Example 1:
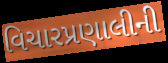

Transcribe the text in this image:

વિચારપ્રણાલીની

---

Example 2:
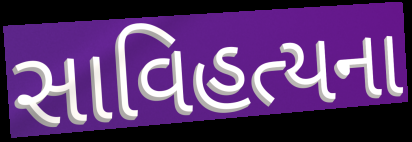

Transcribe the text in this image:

સાવિહત્યના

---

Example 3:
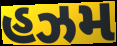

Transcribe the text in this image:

હઝમ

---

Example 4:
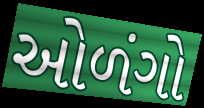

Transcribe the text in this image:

ઓળંગો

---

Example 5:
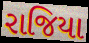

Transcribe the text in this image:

રાજિયા